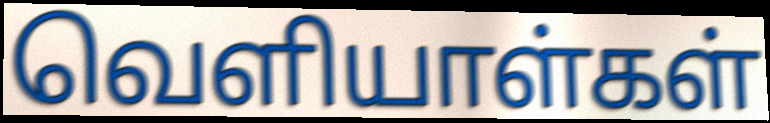
வெளியாள்கள்